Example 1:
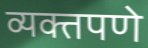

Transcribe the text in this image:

व्यक्तपणे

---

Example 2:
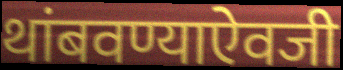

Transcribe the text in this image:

थांबवण्याऐवजी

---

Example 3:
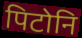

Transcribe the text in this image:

पिटोनि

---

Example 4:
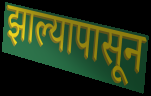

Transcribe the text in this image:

झाल्यापासून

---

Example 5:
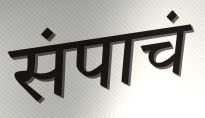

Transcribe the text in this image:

संपाचं